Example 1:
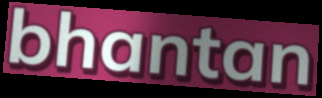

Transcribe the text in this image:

bhantan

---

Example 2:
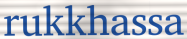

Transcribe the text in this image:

rukkhassa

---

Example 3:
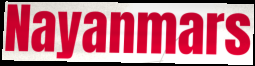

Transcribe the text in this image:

Nayanmars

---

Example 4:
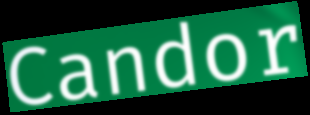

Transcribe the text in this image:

Candor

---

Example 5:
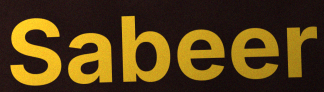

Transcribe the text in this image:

Sabeer